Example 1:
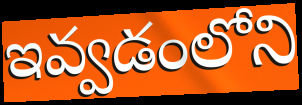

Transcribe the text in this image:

ఇవ్వడంలోని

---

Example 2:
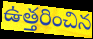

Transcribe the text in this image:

ఉత్తరించిన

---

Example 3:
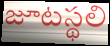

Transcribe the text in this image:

జూటస్థలి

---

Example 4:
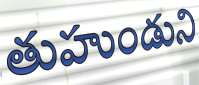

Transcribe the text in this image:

తుహుండుని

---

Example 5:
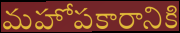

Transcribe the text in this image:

మహోపకారానికి